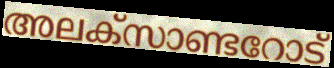
അലക്സാണ്ടറോട്